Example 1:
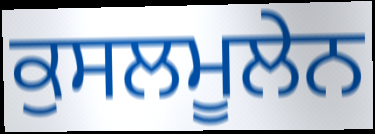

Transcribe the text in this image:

ਕੁਸਲਮੂਲੇਨ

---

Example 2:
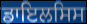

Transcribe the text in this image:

ਡਾਇਲਸਿਸ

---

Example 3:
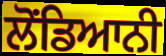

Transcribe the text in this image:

ਲੋਂਡਿਆਨੀ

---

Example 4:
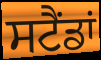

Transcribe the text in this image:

ਸਟੈਂਡਾਂ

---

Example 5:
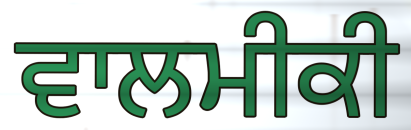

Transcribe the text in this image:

ਵਾਲਮੀਕੀ